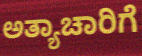
ಅತ್ಯಾಚಾರಿಗೆ